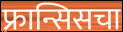
फ्रान्सिसचा